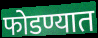
फोडण्यात